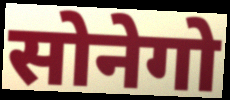
सोनेगो